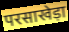
परसाखेड़ा